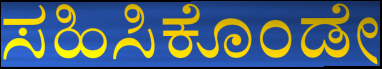
ಸಹಿಸಿಕೊಂಡೇ